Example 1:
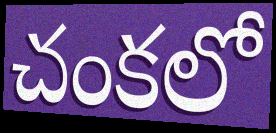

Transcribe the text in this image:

చంకలో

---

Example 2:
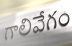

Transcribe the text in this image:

గాలివేగం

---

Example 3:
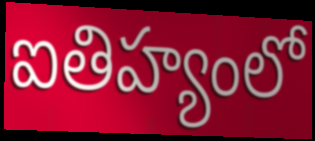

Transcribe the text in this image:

ఐతిహ్యంలో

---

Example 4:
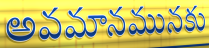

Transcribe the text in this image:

అవమానమునకు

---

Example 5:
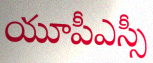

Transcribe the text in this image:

యూపీఎస్సీ